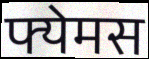
फ्येमस